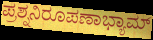
ಪ್ರಶ್ನನಿರೂಪಣಾಭ್ಯಾಮ್